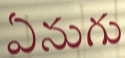
ఏనుగు